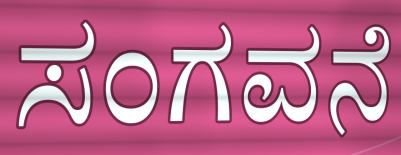
ಸಂಗವನೆ